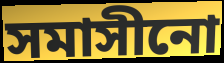
সমাসীনো